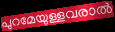
പുറമേയുള്ളവരാൽ